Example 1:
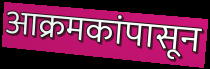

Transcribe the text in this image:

आक्रमकांपासून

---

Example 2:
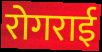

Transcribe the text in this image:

रोगराई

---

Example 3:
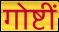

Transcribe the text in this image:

गोष्टीं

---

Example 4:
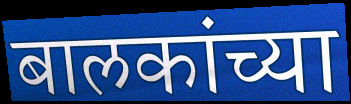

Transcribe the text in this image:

बालकांच्या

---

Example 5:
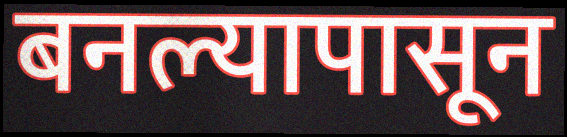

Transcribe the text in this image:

बनल्यापासून